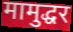
मामुद्धर